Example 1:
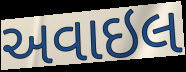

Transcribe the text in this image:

અવાઇલ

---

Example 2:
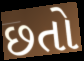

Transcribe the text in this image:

છતો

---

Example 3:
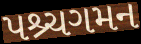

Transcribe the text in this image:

પશ્ર્ચગમન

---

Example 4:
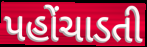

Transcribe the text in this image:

પહોંચાડતી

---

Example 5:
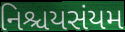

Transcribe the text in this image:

નિશ્ચયસંયમ